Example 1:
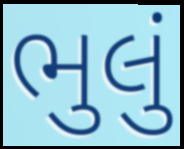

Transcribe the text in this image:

ભુલું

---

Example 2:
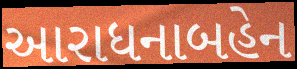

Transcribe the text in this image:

આરાધનાબહેન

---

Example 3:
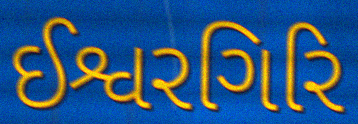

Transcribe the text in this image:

ઈશ્વરગિરિ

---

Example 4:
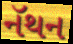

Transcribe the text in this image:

નૅથન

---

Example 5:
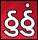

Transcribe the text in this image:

ઠુઠું